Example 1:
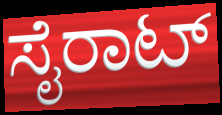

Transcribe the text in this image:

ಸೈರಾಟ್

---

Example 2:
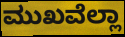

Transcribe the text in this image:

ಮುಖವೆಲ್ಲಾ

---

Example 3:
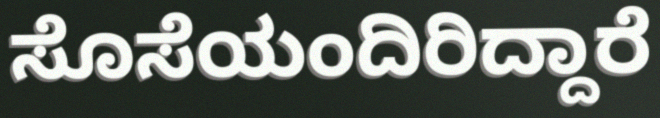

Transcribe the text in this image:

ಸೊಸೆಯಂದಿರಿದ್ದಾರೆ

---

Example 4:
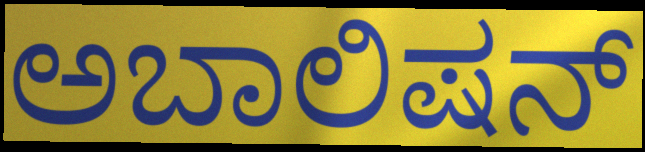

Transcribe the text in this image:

ಅಬಾಲಿಷನ್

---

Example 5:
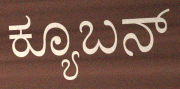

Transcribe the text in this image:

ಕ್ಯೂಬನ್